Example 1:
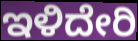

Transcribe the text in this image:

ಇಳಿದೇರಿ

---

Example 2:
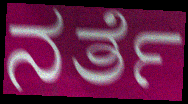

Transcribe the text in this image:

ನರ್ತೆ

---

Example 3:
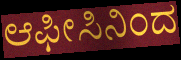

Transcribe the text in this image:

ಆಫೀಸಿನಿಂದ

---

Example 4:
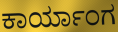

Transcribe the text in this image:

ಕಾರ್ಯಾಂಗ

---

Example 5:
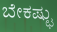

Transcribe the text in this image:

ಬೇಕಷ್ಟು